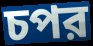
চপর